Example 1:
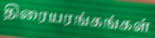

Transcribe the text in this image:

திரையரங்கங்கள்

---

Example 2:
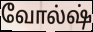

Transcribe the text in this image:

வோல்ஷ்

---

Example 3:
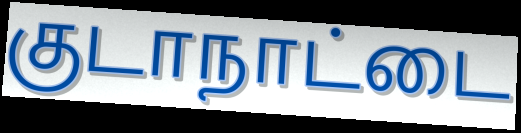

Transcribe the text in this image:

குடாநாட்டை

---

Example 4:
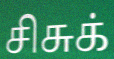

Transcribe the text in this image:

சிசுக்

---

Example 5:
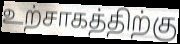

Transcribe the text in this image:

உற்சாகத்திற்கு